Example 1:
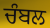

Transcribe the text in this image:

ਚੰਬਲ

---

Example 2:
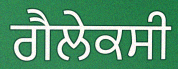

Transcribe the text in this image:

ਗੈਲੇਕਸੀ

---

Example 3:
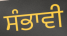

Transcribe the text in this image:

ਸੰਭਾਵੀ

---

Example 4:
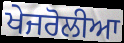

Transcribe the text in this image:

ਖੇਜਰੋਲੀਆ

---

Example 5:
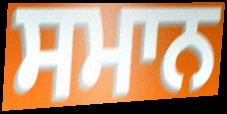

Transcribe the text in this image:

ਸਮਾਨ